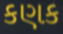
કણક